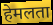
हेमलता